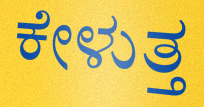
ಕೇಳುತ್ತ